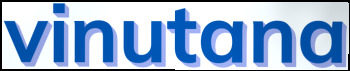
vinutana